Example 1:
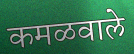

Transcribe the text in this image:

कमळवाले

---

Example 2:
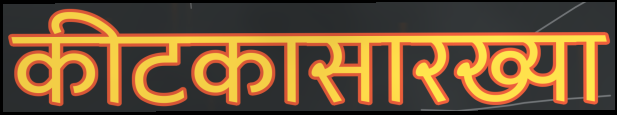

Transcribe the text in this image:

कीटकासारख्या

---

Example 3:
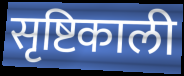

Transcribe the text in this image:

सृष्टिकाली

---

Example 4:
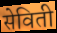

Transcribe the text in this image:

सेविती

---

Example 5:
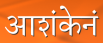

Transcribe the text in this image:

आशंकेनं